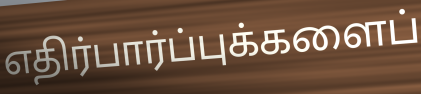
எதிர்பார்ப்புக்களைப்